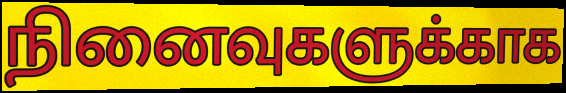
நினைவுகளுக்காக